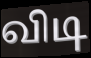
விடி